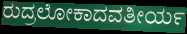
ರುದ್ರಲೋಕಾದವತೀರ್ಯ